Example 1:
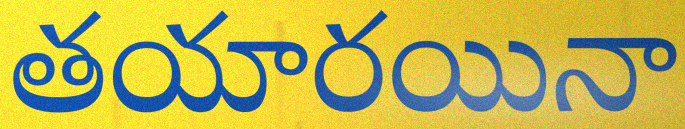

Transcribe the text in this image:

తయారయినా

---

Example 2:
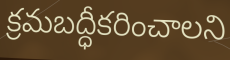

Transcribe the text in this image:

క్రమబద్ధీకరించాలని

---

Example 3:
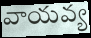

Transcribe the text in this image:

వాయవ్య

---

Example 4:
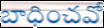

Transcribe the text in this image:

బాధించవో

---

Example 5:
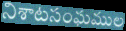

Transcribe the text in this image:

నిశాటసంఘముల